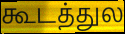
கூடத்துல